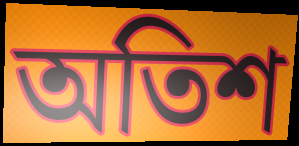
অতিশ